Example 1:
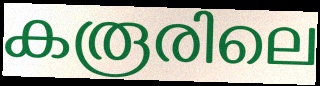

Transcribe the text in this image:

കരൂരിലെ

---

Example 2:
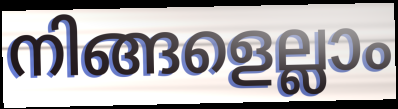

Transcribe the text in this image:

നിങ്ങളെല്ലാം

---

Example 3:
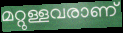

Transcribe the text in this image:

മറ്റുള്ളവരാണ്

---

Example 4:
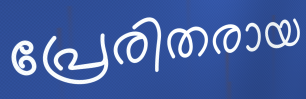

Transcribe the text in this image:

പ്രേരിതരായ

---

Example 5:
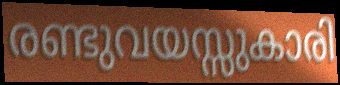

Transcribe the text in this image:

രണ്ടുവയസ്സുകാരി